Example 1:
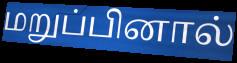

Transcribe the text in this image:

மறுப்பினால்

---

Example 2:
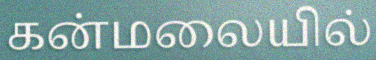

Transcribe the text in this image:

கன்மலையில்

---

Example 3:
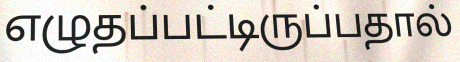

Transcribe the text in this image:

எழுதப்பட்டிருப்பதால்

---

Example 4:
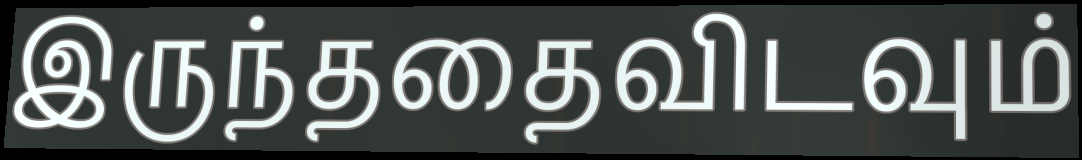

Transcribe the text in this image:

இருந்ததைவிடவும்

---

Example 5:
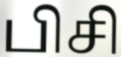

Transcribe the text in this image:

பிசி